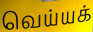
வெய்யக்